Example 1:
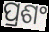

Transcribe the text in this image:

ପ୍ରଶଂ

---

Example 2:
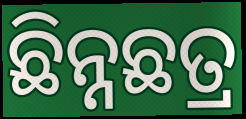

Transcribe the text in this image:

ଛିନ୍ନଛତ୍ର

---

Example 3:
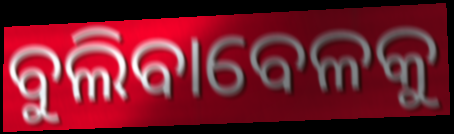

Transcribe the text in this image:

ବୁଲିବାବେଳକୁ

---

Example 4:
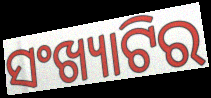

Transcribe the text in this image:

ସଂଖ୍ୟାଟିର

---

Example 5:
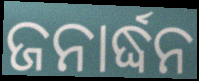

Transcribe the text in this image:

ଜନାର୍ଦ୍ଧନ